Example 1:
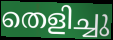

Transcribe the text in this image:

തെളിച്ചു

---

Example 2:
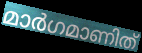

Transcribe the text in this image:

മാർഗമാണിത്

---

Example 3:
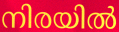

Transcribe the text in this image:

നിരയിൽ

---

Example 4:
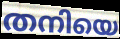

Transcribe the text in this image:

തനിയെ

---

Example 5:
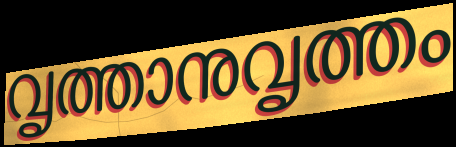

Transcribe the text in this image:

വൃത്താനുവൃത്തം